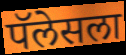
पॅलेसला